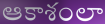
ఆకాశంలా